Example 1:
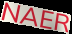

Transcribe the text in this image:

NAER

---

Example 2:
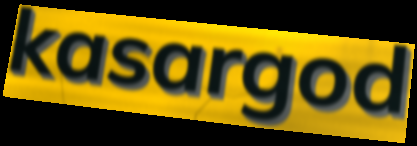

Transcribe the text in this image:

kasargod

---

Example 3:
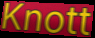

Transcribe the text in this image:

Knott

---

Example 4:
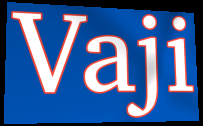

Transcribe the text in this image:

Vaji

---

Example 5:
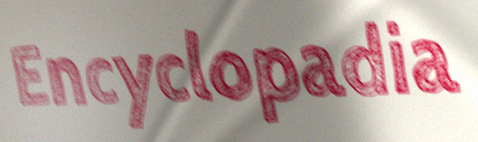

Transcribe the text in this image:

Encyclopadia